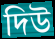
দিউ